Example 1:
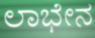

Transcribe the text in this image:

ಲಾಭೇನ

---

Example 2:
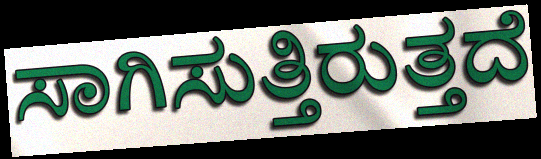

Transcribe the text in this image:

ಸಾಗಿಸುತ್ತಿರುತ್ತದೆ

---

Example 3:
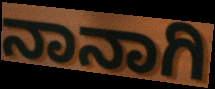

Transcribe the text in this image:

ನಾನಾಗಿ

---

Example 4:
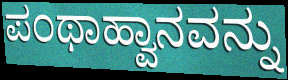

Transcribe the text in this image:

ಪಂಥಾಹ್ವಾನವನ್ನು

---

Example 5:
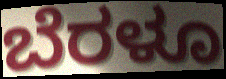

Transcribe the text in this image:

ಬೆರಳೂ